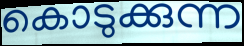
കൊടുക്കുന്ന